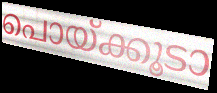
പൊയ്ക്കൂടാ